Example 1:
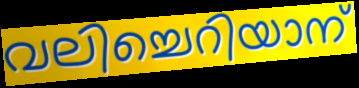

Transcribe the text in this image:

വലിച്ചെറിയാന്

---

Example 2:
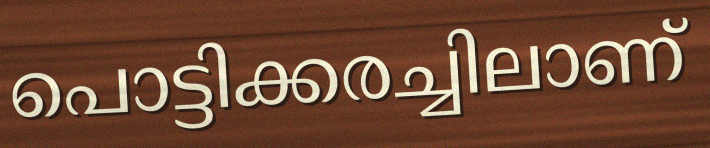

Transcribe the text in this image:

പൊട്ടിക്കരച്ചിലാണ്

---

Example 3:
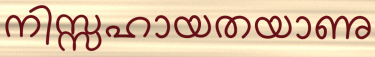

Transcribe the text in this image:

നിസ്സഹായതയാണു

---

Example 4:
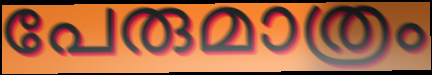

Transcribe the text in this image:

പേരുമാത്രം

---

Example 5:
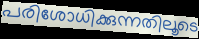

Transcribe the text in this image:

പരിശോധിക്കുന്നതിലൂടെ